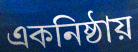
একনিষ্ঠায়